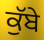
ਕੁੱਬੇ